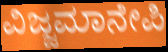
ವಿಜ್ಜಮಾನೇಪಿ